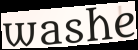
washe